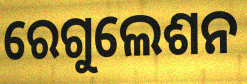
ରେଗୁଲେଶନ